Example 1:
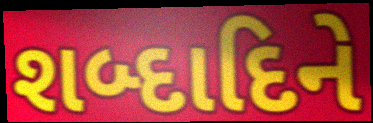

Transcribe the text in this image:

શબ્દાદિને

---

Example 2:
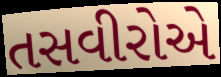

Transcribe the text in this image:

તસવીરોએ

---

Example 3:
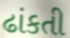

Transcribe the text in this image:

ઢાંકતી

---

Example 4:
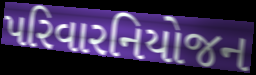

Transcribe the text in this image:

પરિવારનિયોજન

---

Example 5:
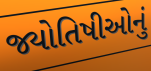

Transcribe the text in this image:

જ્યોતિષીઓનું